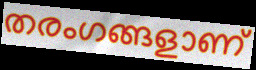
തരംഗങ്ങളാണ്